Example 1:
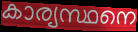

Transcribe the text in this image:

കാര്യസ്ഥനെ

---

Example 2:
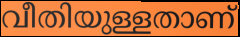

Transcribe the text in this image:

വീതിയുള്ളതാണ്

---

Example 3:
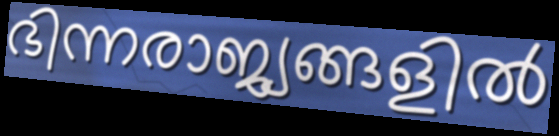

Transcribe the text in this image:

ഭിന്നരാജ്യങ്ങളിൽ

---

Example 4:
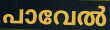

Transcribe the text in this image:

പാവേൽ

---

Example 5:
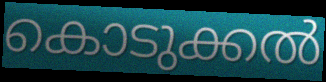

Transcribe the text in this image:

കൊടുക്കൽ